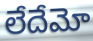
లేదేమో